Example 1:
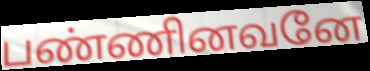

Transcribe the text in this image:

பண்ணினவனே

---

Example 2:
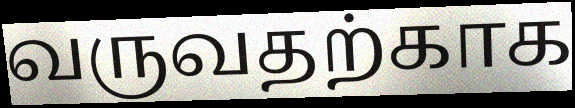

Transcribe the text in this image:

வருவதற்காக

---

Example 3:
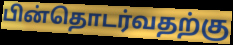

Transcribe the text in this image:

பின்தொடர்வதற்கு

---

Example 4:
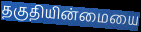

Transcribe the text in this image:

தகுதியின்மையை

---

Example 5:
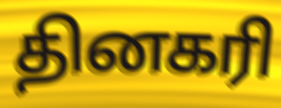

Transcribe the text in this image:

தினகரி